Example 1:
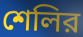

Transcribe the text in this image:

শেলির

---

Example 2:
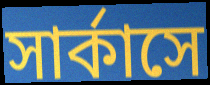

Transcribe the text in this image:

সার্কাসে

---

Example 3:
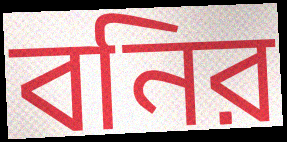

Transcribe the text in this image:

বনির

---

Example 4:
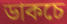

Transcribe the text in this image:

ডাকচে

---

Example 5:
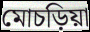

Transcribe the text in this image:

মোচড়িয়া